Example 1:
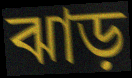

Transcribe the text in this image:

ঝাড়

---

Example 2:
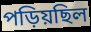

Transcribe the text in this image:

পড়িয়ছিল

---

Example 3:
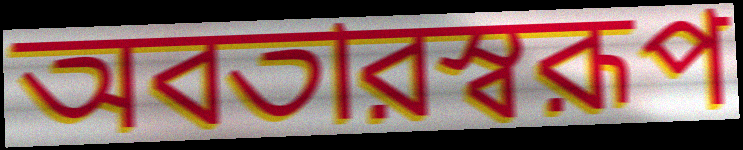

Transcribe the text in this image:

অবতারস্বরূপ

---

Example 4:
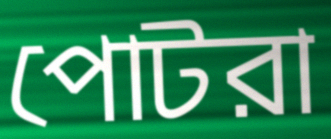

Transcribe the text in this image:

পোটরা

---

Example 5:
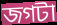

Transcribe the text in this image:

জগটা